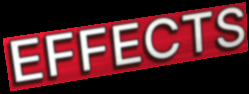
EFFECTS